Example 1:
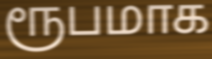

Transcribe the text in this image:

ரூபமாக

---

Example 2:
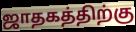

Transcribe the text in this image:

ஜாதகத்திற்கு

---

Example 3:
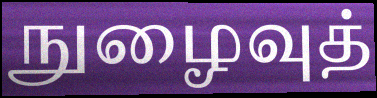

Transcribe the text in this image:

நுழைவுத்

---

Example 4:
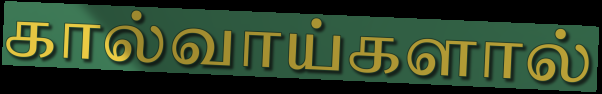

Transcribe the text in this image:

கால்வாய்களால்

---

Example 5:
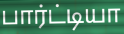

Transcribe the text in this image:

பார்ட்டியா